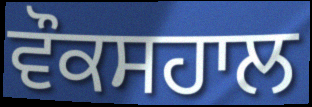
ਵੌਕਸਹਾਲ